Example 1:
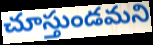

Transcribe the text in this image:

చూస్తుండమని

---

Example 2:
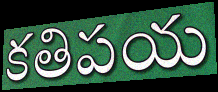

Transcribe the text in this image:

కతిపయ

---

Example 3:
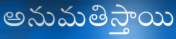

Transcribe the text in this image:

అనుమతిస్తాయి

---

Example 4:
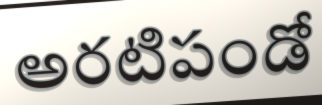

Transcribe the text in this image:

అరటిపండో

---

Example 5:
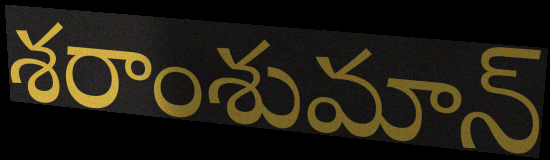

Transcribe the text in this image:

శరాంశుమాన్